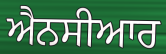
ਐਨਸੀਆਰ